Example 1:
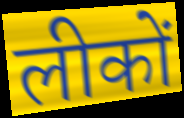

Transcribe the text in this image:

लीकों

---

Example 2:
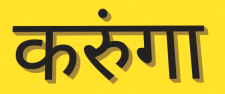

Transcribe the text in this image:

करुंगा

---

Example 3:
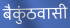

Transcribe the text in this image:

बैकुंठवासी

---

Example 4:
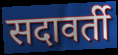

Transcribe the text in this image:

सदावर्ती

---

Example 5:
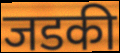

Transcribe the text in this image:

जडकी